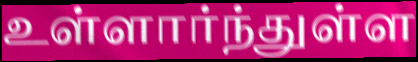
உள்ளார்ந்துள்ள